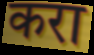
करा